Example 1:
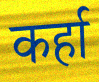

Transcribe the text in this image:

कर्हा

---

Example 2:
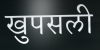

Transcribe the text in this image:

खुपसली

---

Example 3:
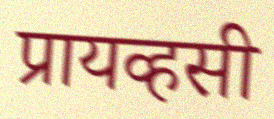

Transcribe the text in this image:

प्रायव्हसी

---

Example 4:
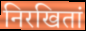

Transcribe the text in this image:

निरखितां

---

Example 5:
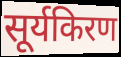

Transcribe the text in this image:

सूर्यकिरण